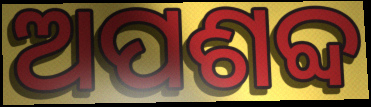
ଅପଶବ୍ଦ